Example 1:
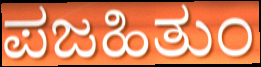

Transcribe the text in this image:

ಪಜಹಿತುಂ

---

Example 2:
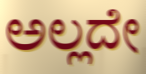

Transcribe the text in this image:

ಅಲ್ಲದೇ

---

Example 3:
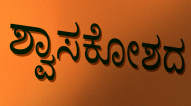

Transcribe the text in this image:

ಶ್ವಾಸಕೋಶದ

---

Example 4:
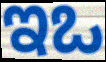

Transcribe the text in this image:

ಇಒ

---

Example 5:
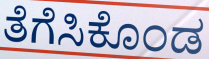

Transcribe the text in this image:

ತೆಗೆಸಿಕೊಂಡ